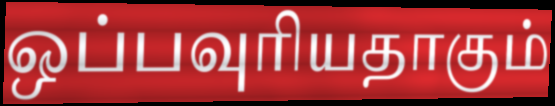
ஒப்பவுரியதாகும்